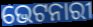
ଭେଟନାରୀ